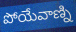
పోయేవాణ్ని